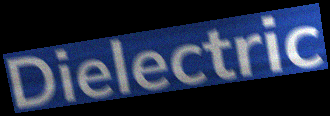
Dielectric